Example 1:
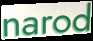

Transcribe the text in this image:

narod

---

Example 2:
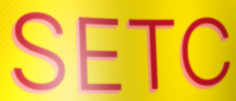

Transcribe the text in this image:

SETC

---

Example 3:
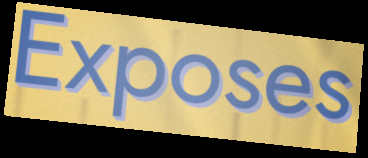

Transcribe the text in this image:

Exposes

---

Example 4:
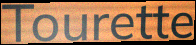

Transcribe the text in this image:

Tourette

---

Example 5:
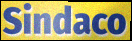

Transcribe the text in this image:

Sindaco